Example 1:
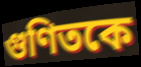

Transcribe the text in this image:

গুণিতকে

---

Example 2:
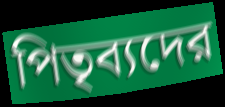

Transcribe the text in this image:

পিতৃব্যদের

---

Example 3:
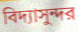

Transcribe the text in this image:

বিদ্যাসুন্দর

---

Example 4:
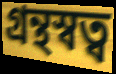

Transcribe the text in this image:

গ্রন্থস্বত্ব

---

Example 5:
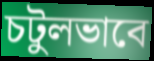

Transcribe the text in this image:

চটুলভাবে